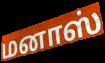
மனாஸ்